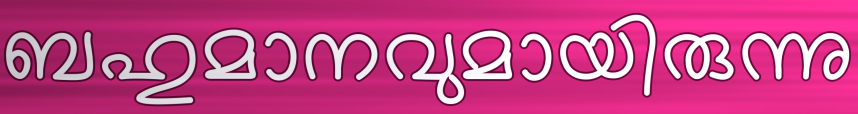
ബഹുമാനവുമായിരുന്നു